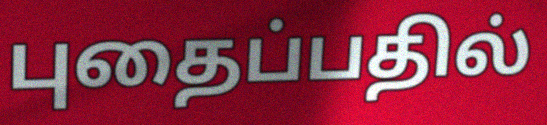
புதைப்பதில்